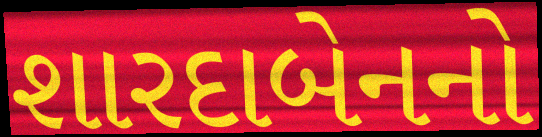
શારદાબેનનો